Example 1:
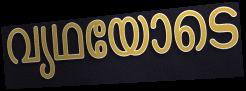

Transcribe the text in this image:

വ്യഥയോടെ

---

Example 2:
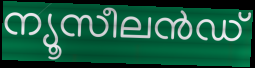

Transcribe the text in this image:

ന്യൂസീലൻഡ്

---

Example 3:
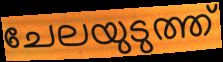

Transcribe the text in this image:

ചേലയുടുത്ത്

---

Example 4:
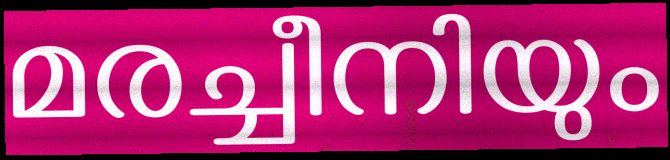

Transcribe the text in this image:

മരച്ചീനിയും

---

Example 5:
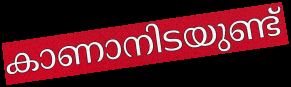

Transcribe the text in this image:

കാണാനിടയുണ്ട്